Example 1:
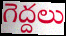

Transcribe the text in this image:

గెద్దలు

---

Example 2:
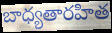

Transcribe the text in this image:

బాధ్యతారహిత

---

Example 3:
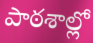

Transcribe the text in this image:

పాఠశాల్లో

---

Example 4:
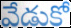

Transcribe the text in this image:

వేడుకో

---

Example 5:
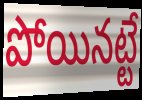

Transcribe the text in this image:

పోయినట్టే